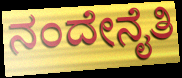
ನಂದೇನೈತಿ